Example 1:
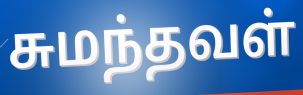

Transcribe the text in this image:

சுமந்தவள்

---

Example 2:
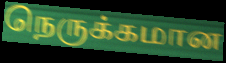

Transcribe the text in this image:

நெருக்கமான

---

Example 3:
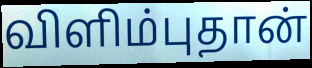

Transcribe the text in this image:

விளிம்புதான்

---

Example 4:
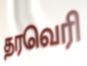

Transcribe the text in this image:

தரவெரி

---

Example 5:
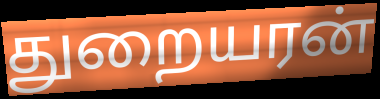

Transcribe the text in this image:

துறையரன்